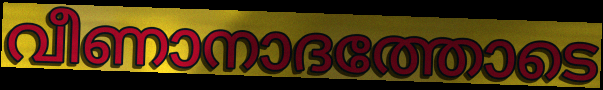
വീണാനാദത്തോടെ